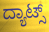
ದ್ಯಾಟ್ಸ್